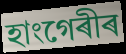
হাংগেৰীৰ